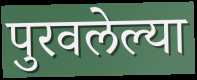
पुरवलेल्या